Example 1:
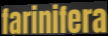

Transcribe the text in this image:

farinifera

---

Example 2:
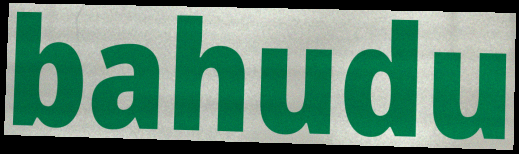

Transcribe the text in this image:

bahudu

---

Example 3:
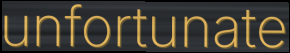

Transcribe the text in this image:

unfortunate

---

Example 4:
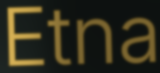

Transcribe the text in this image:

Etna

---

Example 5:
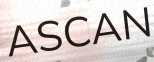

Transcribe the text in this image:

ASCAN